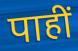
पाहीं